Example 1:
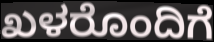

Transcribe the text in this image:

ಖಳರೊಂದಿಗೆ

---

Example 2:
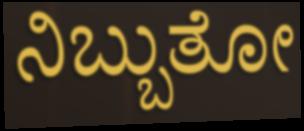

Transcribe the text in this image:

ನಿಬ್ಬುತೋ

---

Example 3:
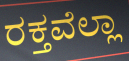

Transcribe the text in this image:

ರಕ್ತವೆಲ್ಲಾ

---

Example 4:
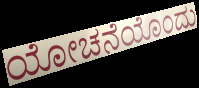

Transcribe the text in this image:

ಯೋಚನೆಯೊಂದು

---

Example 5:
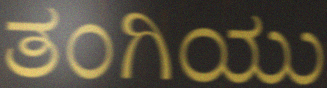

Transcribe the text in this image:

ತಂಗಿಯು